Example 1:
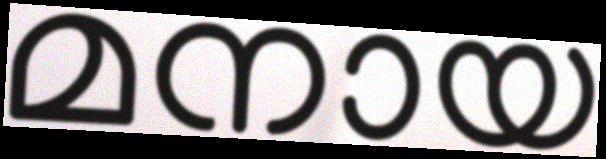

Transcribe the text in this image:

മനായ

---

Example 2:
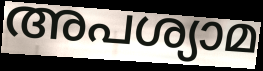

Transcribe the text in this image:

അപശ്യാമ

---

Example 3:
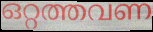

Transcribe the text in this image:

ഒറ്റത്തവണ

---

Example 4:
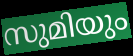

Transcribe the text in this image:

സുമിയും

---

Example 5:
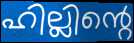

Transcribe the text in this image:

ഹില്ലിന്റെ